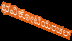
ಛವಿಕೋಟಿಯೆರಚಲ್